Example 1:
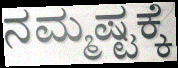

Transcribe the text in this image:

ನಮ್ಮಷ್ಟಕ್ಕೆ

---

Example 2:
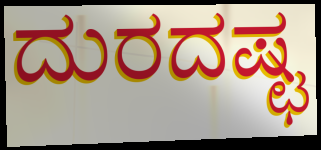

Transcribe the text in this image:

ದುರದಷ್ಟ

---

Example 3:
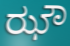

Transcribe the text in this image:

ಝೌ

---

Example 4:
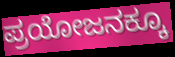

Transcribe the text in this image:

ಪ್ರಯೋಜನಕ್ಕೂ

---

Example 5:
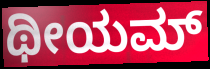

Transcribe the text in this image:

ಥೀಯಮ್